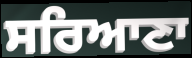
ਸਰਿਆਣਾ